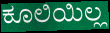
ಕೂಲಿಯಿಲ್ಲ